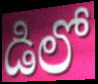
డిలో